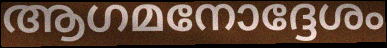
ആഗമനോദ്ദേശം